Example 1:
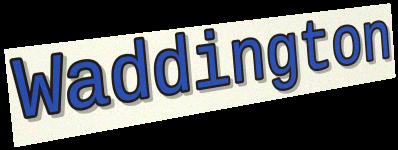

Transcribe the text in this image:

Waddington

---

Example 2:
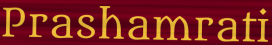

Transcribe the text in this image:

Prashamrati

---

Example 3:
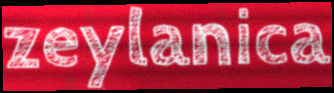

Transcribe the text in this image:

zeylanica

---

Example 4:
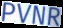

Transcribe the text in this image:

PVNR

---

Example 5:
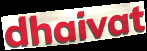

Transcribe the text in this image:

dhaivat